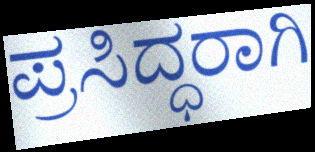
ಪ್ರಸಿದ್ಧರಾಗಿ